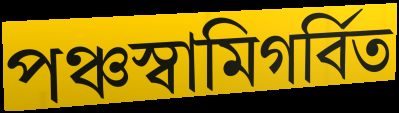
পঞ্চস্বামিগর্বিত